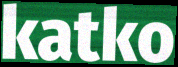
katko